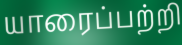
யாரைப்பற்றி